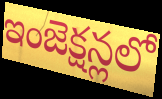
ఇంజెక్షన్లలో